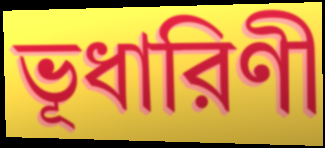
ভূধারিণী